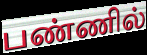
பண்ணில்